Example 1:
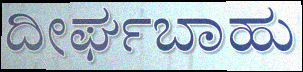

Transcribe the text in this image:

ದೀರ್ಘಬಾಹು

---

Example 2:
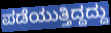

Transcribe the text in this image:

ಪಡೆಯುತ್ತಿದ್ದದ್ದು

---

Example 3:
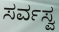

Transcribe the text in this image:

ಸರ್ವಸ್ವ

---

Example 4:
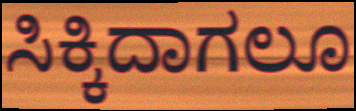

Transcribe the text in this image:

ಸಿಕ್ಕಿದಾಗಲೂ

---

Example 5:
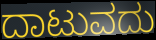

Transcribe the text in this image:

ದಾಟುವದು